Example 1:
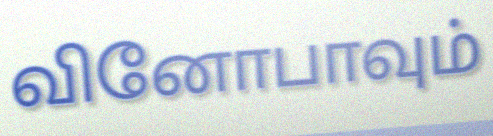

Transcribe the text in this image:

வினோபாவும்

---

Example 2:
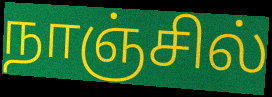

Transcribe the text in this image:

நாஞ்சில்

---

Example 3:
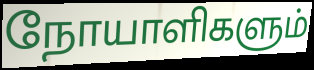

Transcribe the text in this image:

நோயாளிகளும்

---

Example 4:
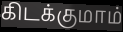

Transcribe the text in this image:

கிடக்குமாம்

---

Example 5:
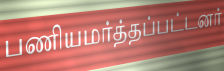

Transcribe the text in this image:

பணியமர்த்தப்பட்டனர்